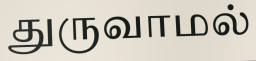
துருவாமல்